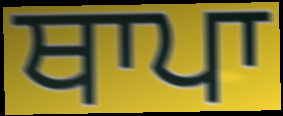
ਥਾਪਾ